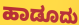
ಹಾಡೂದು